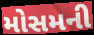
મોસમની